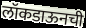
लॉकडाऊनची